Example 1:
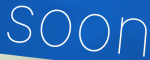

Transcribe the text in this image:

soon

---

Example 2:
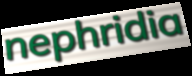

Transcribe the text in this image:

nephridia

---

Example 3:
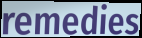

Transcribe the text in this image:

remedies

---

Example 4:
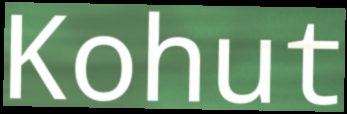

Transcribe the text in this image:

Kohut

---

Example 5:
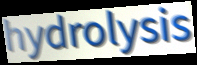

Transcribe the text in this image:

hydrolysis